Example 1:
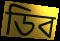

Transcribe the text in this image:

ডিব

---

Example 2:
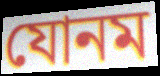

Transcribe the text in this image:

যোনম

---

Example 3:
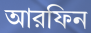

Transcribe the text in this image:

আরফিন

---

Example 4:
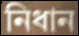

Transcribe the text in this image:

নিধান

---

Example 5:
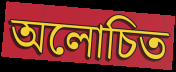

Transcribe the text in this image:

অলোচিত